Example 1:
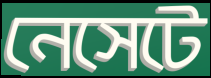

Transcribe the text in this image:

নেসেটে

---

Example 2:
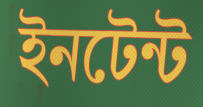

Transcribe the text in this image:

ইনটেন্ট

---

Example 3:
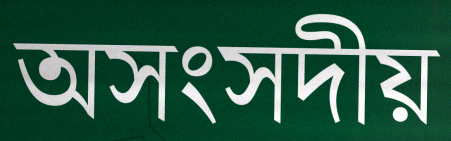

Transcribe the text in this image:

অসংসদীয়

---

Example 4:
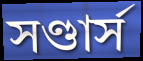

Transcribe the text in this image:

সণ্ডার্স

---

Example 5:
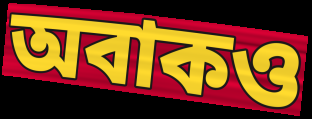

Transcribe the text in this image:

অবাকও